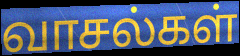
வாசல்கள்